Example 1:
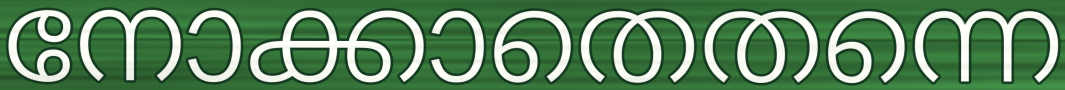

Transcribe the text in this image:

നോക്കാതെതന്നെ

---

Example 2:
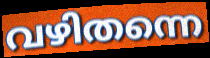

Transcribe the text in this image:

വഴിതന്നെ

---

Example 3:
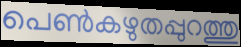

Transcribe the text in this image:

പെൺകഴുതപ്പുറത്തു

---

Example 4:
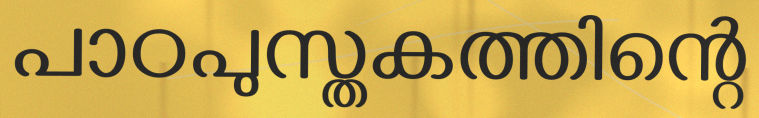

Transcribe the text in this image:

പാഠപുസ്തകത്തിന്റെ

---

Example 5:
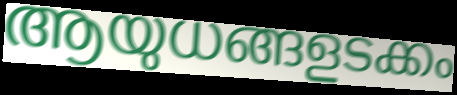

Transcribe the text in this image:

ആയുധങ്ങളടക്കം